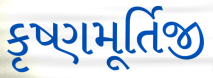
કૃષ્ણમૂર્તિજી